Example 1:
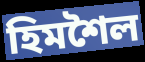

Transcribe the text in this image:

হিমশৈল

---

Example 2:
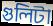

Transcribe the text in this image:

গুলিটা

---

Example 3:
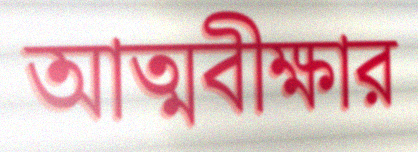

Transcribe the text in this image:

আত্মবীক্ষার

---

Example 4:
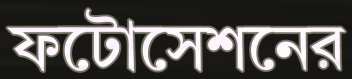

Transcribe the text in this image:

ফটোসেশনের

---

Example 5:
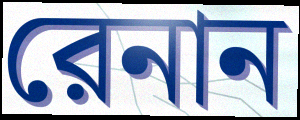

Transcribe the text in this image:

রেনান